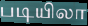
படியிலா